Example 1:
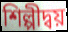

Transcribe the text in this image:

শিল্পীদ্বয়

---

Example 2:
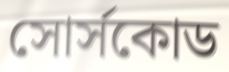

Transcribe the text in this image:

সোর্সকোড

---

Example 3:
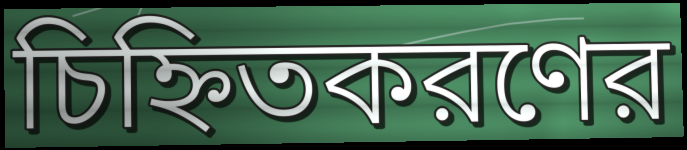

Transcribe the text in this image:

চিহ্নিতকরণের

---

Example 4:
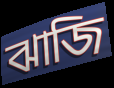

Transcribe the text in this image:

ঝাজি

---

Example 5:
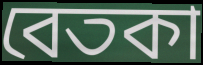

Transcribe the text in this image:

বেতকা